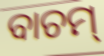
ବାଚମ୍